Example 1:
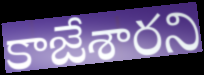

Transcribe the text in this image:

కాజేశారని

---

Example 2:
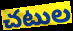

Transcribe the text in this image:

చటుల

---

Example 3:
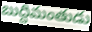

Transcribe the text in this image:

బుద్దిమంతుడు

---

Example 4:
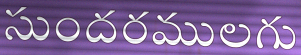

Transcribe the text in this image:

సుందరములగు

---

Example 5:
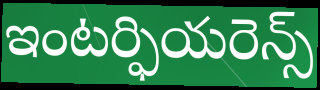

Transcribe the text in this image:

ఇంటర్ఫియరెన్స్